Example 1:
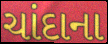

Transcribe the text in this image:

ચાંદાના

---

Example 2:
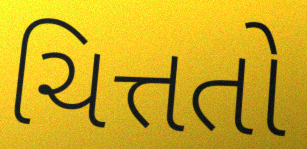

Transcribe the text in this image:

ચિત્તતો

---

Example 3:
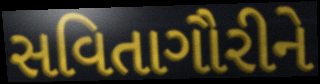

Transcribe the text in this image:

સવિતાગૌરીને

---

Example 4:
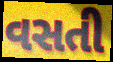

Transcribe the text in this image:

વસતી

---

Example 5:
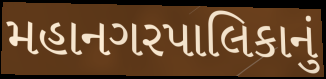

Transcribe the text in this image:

મહાનગરપાલિકાનું